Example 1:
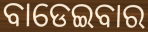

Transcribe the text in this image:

ବାଡେଇବାର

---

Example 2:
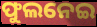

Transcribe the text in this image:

ଫୁଲନେଇ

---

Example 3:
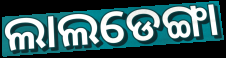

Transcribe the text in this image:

ଲାଲଡେଙ୍ଗା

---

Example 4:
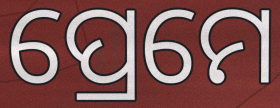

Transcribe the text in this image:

ପ୍ରେମେ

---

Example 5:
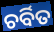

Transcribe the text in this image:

ଚର୍ବିତ